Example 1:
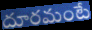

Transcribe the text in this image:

దూరమంటే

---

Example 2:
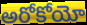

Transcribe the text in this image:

అరోకోయో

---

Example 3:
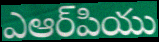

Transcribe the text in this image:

ఎఆర్‌పియు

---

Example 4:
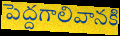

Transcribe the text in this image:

పెద్దగాలివానకి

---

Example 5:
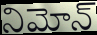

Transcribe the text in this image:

నిమోన్